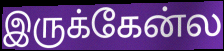
இருக்கேன்ல